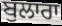
ਬੁਲਾਰਾ